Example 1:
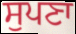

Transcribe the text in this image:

ਸੁਪਣਾ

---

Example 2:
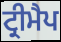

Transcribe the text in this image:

ਟ੍ਰੀਮੈਪ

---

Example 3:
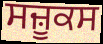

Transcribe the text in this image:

ਸਜ਼ੂਕਸ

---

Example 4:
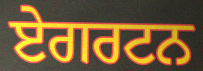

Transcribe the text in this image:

ਏਗਰਟਨ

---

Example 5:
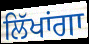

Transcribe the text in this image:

ਲਿੱਖਾਂਗਾ